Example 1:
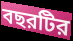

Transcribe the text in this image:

বছরটির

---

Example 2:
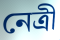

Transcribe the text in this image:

নেত্রী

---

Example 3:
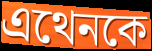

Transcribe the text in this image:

এথেনকে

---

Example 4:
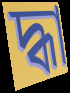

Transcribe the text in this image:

দ্ধা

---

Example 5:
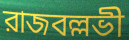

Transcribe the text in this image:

রাজবল্লভী